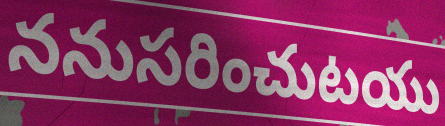
ననుసరించుటయు